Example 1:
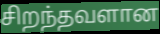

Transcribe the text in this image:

சிறந்தவளான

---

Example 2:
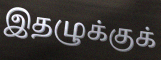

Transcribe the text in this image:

இதழுக்குக்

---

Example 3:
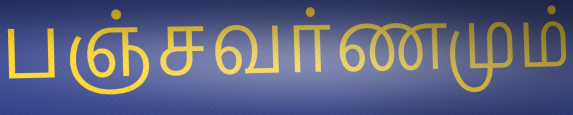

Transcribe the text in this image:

பஞ்சவர்ணமும்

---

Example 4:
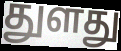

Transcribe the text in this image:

துளது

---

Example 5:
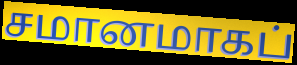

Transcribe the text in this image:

சமானமாகப்